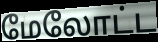
மேலோட்ட